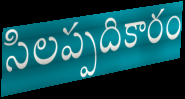
సిలప్పదికారం